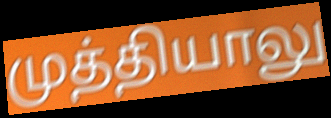
முத்தியாலு